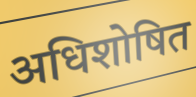
अधिशोषित